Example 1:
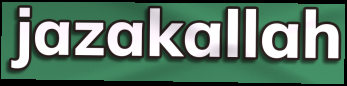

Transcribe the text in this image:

jazakallah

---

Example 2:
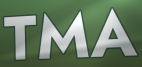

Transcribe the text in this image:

TMA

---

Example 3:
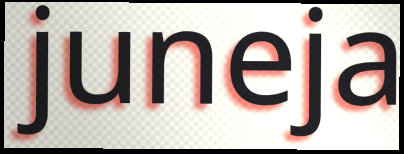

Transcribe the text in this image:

juneja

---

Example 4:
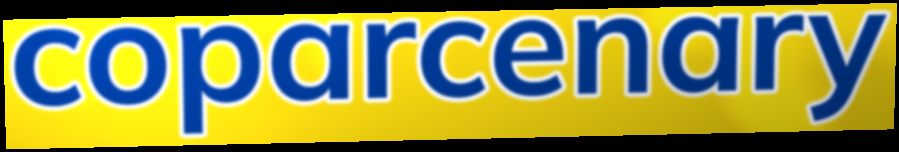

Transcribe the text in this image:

coparcenary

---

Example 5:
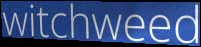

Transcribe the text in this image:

witchweed